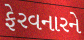
ફેરવનારને